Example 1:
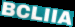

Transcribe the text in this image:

BCLIIA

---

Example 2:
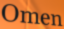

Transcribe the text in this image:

Omen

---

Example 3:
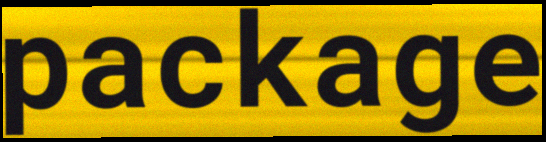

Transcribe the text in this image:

package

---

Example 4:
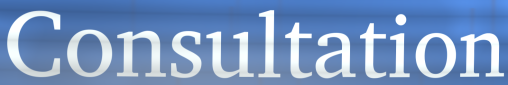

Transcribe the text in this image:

Consultation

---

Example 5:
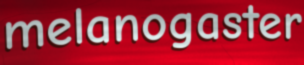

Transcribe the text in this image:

melanogaster